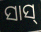
ସାସ୍